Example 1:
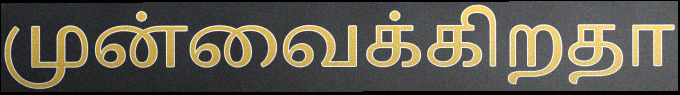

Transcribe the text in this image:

முன்வைக்கிறதா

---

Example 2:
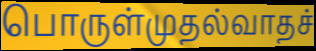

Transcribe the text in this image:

பொருள்முதல்வாதச்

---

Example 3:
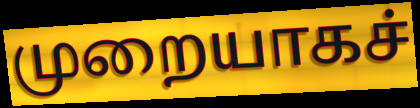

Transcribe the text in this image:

முறையாகச்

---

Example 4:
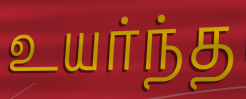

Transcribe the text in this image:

உயர்ந்த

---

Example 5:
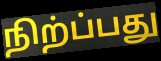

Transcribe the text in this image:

நிற்ப்பது